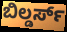
ಬಿಲ್ಡರ್ಸ್